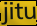
jitu